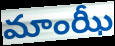
మాంఝీ